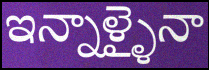
ఇన్నాళ్ళైనా